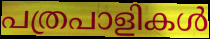
പത്രപാളികൾ